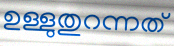
ഉള്ളുതുറന്നത്